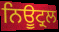
ਨਿਊਟ੍ਰਲ